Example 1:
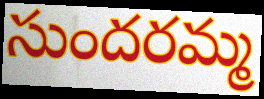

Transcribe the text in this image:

సుందరమ్మ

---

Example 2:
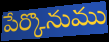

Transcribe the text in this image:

పేర్కొనుము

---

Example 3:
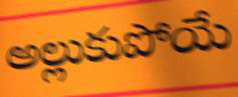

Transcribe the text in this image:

అల్లుకుపోయే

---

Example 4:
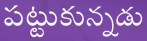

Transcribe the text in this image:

పట్టుకున్నడు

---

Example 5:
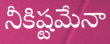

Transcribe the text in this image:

నీకిష్టమేనా